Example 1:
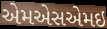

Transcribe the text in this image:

એમએસએમઇ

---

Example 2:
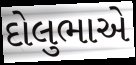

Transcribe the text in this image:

દોલુભાએ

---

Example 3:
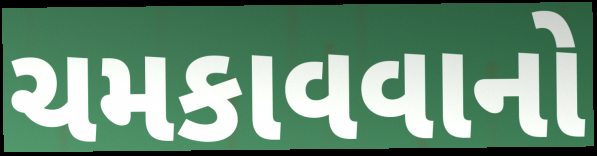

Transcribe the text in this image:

ચમકાવવાનો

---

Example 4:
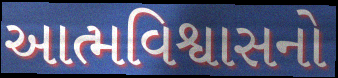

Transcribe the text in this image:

આત્મવિશ્વાસનો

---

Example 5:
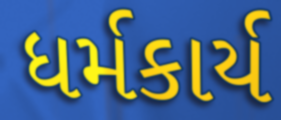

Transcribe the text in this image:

ધર્મકાર્ય